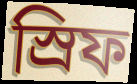
স্রিফ